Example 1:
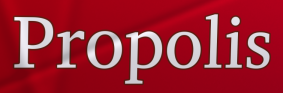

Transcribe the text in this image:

Propolis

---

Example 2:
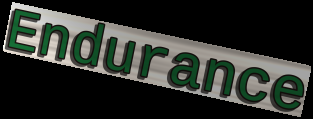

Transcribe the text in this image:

Endurance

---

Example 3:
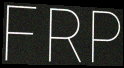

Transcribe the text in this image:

FRP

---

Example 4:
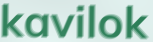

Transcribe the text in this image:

kavilok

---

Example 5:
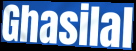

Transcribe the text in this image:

Ghasilal